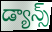
డ్యాన్స్